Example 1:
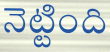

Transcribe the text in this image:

నెట్టింది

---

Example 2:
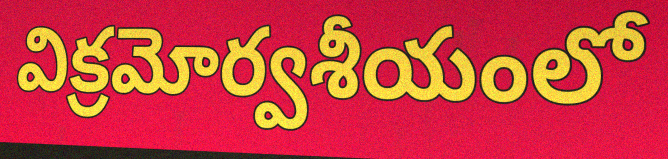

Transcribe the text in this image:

విక్రమోర్వశీయంలో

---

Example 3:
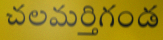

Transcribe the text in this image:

చలమర్తిగండ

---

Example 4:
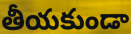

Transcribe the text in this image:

తీయకుండా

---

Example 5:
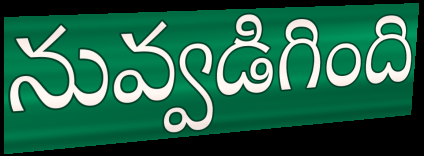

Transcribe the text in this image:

నువ్వడిగింది